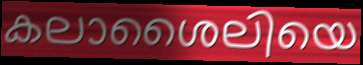
കലാശൈലിയെ